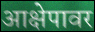
आक्षेपावर